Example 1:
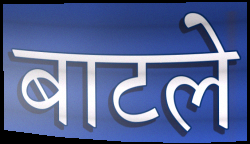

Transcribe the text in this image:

बाटले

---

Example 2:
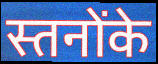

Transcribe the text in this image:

स्तनोंके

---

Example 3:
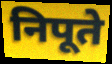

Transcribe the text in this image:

निपूते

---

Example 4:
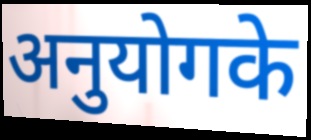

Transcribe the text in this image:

अनुयोगके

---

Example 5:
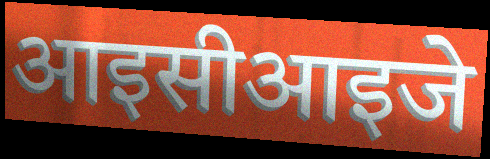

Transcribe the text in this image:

आइसीआइजे